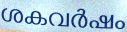
ശകവർഷം